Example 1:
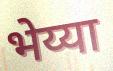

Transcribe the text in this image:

भेय्या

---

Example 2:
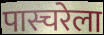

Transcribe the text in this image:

पास्चरेला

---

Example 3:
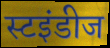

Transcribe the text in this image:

स्टइंडीज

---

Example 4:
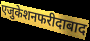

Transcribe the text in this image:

एजुकेशनफरीदाबाद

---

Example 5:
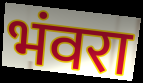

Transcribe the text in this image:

भंवरा